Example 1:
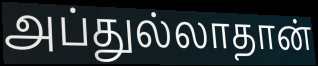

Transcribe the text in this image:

அப்துல்லாதான்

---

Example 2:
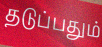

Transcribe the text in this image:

தடுப்பதும்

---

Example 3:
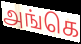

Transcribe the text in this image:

அங்கெ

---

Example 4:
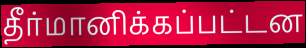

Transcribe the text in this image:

தீர்மானிக்கப்பட்டன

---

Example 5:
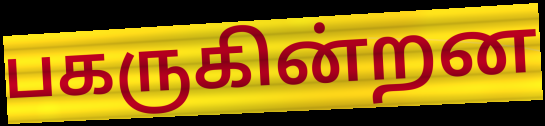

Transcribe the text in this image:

பகருகின்றன